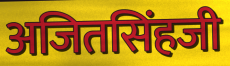
अजितसिंहजी